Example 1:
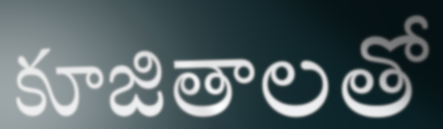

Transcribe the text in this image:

కూజితాలతో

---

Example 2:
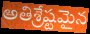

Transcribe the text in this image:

అతిశ్రేష్టమైన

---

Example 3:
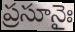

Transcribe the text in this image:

ప్రసూనైః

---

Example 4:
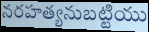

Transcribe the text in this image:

నరహత్యనుబట్టియు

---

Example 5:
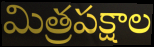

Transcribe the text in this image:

మిత్రపక్షాల